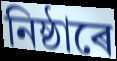
নিষ্ঠাৰে